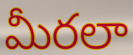
మీరలా